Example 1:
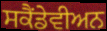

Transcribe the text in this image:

ਸਕੈਂਡੇਵੀਅਨ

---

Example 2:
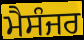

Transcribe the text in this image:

ਮੈਸੰਜਰ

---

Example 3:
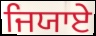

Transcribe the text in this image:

ਜਿਯਾਏ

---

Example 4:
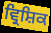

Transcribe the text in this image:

ਵ੍ਰਿਸ਼ਿਕ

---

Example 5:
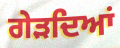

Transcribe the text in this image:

ਗੇੜਦਿਆਂ